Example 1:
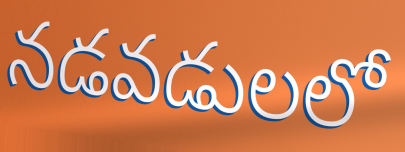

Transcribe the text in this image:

నడవడులలో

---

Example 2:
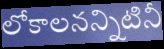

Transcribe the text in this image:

లోకాలనన్నిటినీ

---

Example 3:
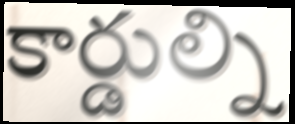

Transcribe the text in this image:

కార్డుల్ని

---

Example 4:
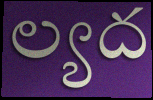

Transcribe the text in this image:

ల్యద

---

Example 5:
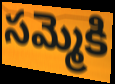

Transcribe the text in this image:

సమ్మెకి